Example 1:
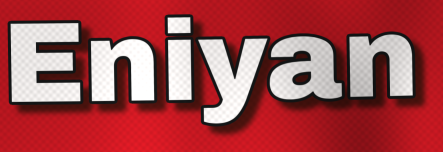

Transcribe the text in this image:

Eniyan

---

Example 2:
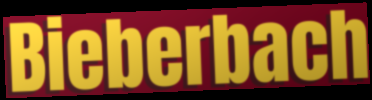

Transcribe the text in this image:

Bieberbach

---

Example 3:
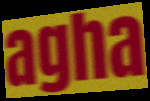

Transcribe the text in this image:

agha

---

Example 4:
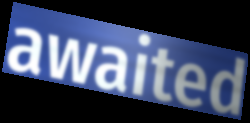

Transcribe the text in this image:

awaited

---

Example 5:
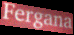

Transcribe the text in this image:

Fergana